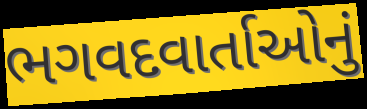
ભગવદવાર્તાઓનું